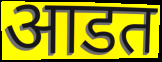
आडत